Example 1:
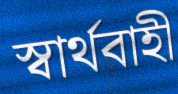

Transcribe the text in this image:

স্বার্থবাহী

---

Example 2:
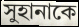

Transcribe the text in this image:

সুহানাকে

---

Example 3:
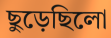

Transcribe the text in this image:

ছুড়েছিলো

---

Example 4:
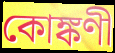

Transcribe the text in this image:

কোঙ্কণী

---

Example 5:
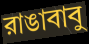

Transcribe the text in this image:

রাঙাবাবু